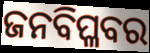
ଜନବିପ୍ଳବର